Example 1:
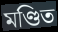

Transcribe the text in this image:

মণ্ডিত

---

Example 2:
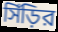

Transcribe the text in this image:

সিঁড়ির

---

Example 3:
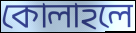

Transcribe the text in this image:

কোলাহলে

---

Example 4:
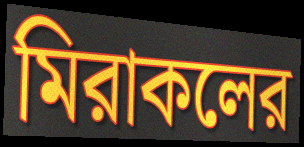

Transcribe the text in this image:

মিরাকলের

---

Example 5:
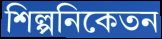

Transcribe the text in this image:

শিল্পনিকেতন